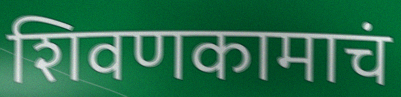
शिवणकामाचं